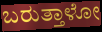
ಬರುತ್ತಾಳೋ